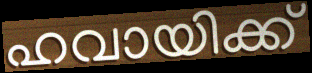
ഹവായിക്ക്